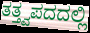
ತತ್ತ್ವಪದದಲ್ಲಿ